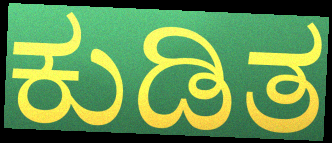
ಕುಡಿತ